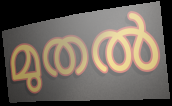
മുതൽ